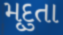
મૃદુતા